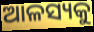
ଆଳସ୍ୟକୁ